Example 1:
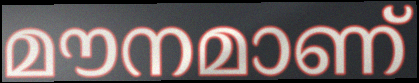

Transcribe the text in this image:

മൗനമാണ്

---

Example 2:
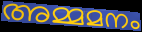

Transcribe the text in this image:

അമ്മമനം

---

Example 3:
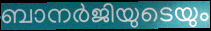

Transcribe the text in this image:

ബാനർജിയുടെയും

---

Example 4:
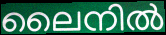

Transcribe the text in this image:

ലൈനിൽ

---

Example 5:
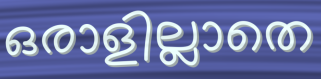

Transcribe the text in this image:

ഒരാളില്ലാതെ